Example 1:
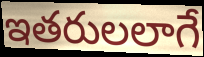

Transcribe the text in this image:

ఇతరులలాగే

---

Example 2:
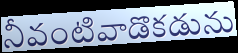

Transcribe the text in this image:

నీవంటివాడొకడును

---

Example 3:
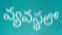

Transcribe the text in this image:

వ్యవస్థలో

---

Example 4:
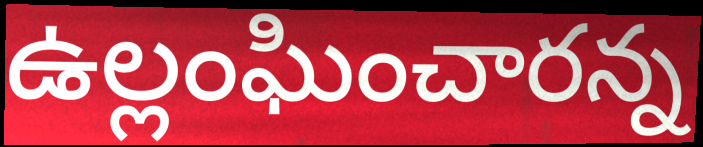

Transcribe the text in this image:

ఉల్లంఘించారన్న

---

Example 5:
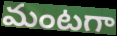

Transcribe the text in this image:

మంటగా